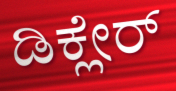
ಡಿಕ್ಲೇರ್